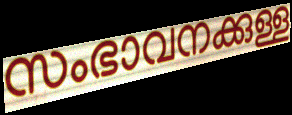
സംഭാവനക്കുള്ള